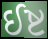
ઈષ્ટ